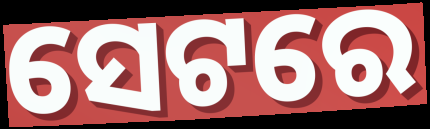
ସେଟରେ